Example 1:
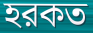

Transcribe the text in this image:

হরকত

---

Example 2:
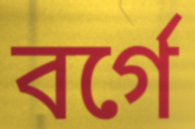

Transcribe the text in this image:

বর্গে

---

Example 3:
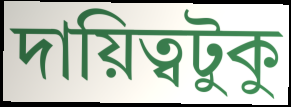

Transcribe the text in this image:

দায়িত্বটুকু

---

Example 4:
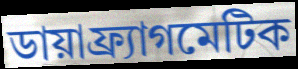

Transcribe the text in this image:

ডায়াফ্র্যাগমেটিক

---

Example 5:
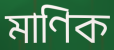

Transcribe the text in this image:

মাণিক